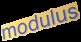
modulus